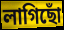
লাগিছোঁ